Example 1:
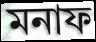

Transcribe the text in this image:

মনাফ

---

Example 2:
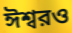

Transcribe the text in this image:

ঈশ্বরও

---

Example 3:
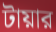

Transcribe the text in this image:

টায়ার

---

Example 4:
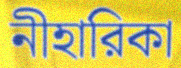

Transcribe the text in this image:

নীহারিকা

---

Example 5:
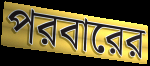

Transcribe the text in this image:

পরবারের